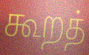
கூறத்